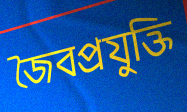
জৈবপ্রযুক্তি